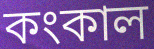
কংকাল